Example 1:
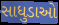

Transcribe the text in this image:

સાધુડાઓ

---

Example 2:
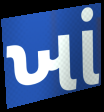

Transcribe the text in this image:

ખાં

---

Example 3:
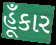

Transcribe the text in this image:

હૂઁકાર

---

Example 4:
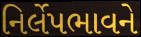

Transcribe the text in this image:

નિર્લેપભાવને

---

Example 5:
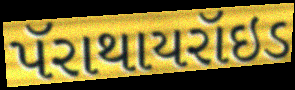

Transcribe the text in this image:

પૅરાથાયરૉઇડ